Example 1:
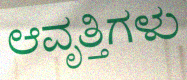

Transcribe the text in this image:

ಆವೃತ್ತಿಗಳು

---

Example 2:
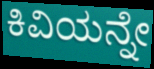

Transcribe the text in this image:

ಕಿವಿಯನ್ನೇ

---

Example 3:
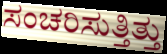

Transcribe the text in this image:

ಸಂಚರಿಸುತ್ತಿತ್ತು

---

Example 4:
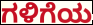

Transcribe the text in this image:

ಗಳಿಗೆಯ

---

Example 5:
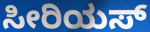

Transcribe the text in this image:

ಸೀರಿಯಸ್